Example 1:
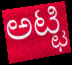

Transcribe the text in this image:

ಅಟ್ಟಿ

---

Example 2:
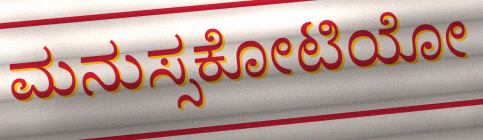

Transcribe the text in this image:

ಮನುಸ್ಸಕೋಟಿಯೋ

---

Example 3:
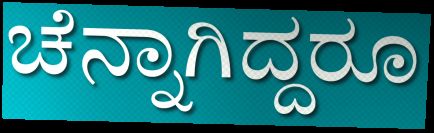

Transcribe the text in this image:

ಚೆನ್ನಾಗಿದ್ದರೂ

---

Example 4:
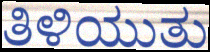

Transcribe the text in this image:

ತಿಳಿಯುತು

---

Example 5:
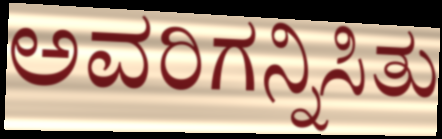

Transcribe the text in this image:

ಅವರಿಗನ್ನಿಸಿತು